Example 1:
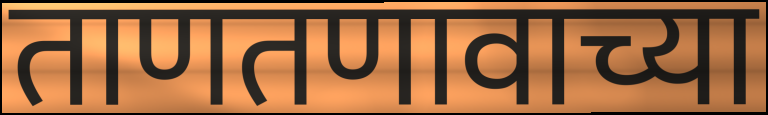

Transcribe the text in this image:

ताणतणावाच्या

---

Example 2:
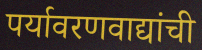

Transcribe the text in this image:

पर्यावरणवाद्यांची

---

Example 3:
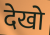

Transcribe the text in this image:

देखो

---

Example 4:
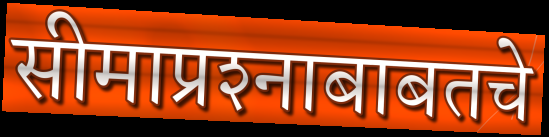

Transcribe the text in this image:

सीमाप्रश्नाबाबतचे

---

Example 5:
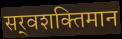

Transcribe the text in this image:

सर्वशक्‍तिमान